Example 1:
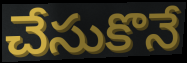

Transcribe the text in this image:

చేసుకొనే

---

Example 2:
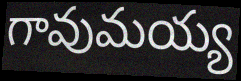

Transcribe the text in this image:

గావుమయ్య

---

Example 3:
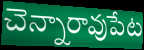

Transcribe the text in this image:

చెన్నారావుపేట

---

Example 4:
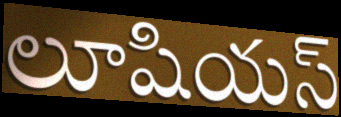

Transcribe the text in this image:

లూషియస్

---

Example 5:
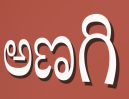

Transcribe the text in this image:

అణగి